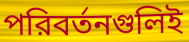
পরিবর্তনগুলিই